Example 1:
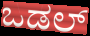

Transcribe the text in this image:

ಒಡಲ್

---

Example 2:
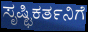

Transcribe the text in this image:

ಸೃಷ್ಟಿಕರ್ತನಿಗೆ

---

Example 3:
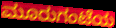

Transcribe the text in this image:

ಮೂರುಗಂಟೆಯ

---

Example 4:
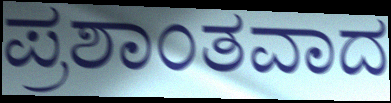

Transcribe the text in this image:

ಪ್ರಶಾಂತವಾದ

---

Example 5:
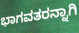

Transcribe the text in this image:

ಭಾಗವತರನ್ನಾಗಿ